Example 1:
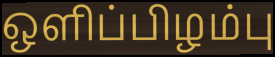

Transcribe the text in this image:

ஒளிப்பிழம்பு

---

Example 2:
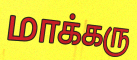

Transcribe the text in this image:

மாக்கரு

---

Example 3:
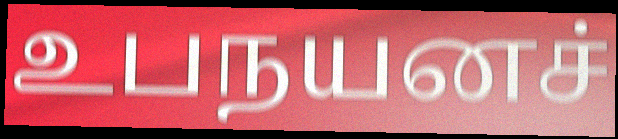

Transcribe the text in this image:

உபநயனச்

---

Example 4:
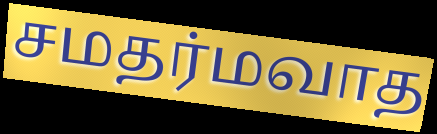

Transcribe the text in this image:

சமதர்மவாத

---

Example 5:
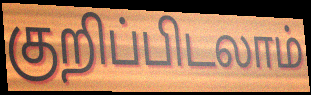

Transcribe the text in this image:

குறிப்பிடலாம்